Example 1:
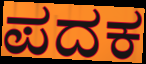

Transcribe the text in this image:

ಪದಕ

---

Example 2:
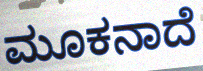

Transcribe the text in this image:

ಮೂಕನಾದೆ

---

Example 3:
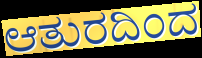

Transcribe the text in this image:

ಆತುರದಿಂದ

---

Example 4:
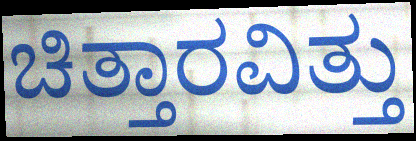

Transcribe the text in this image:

ಚಿತ್ತಾರವಿತ್ತು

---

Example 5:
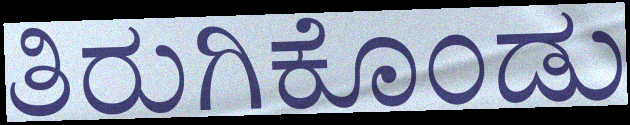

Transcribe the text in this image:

ತಿರುಗಿಕೊಂಡು